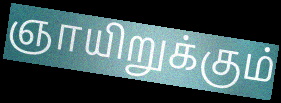
ஞாயிறுக்கும்